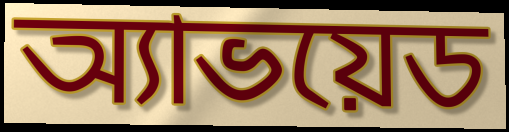
অ্যাভয়েড